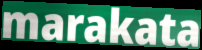
marakata